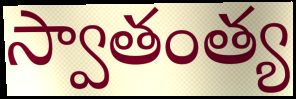
స్వాతంత్య